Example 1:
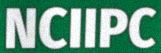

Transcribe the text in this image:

NCIIPC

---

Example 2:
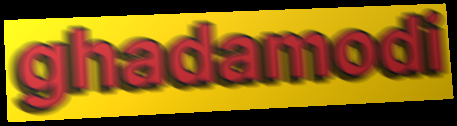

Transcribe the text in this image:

ghadamodi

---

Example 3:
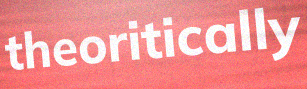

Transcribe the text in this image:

theoritically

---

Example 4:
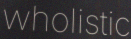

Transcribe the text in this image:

wholistic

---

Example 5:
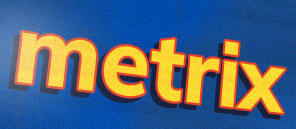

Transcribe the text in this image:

metrix